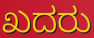
ಖದರು